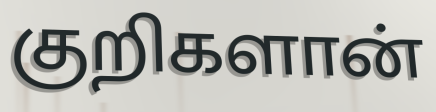
குறிகளான்